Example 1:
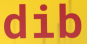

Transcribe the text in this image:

dib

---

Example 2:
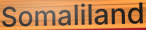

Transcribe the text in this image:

Somaliland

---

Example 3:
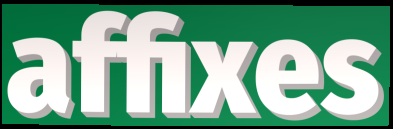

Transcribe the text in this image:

affixes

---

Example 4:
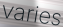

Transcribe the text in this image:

varies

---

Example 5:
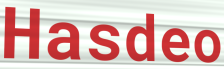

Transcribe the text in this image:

Hasdeo